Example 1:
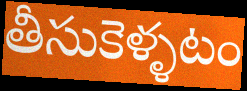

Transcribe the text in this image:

తీసుకెళ్ళటం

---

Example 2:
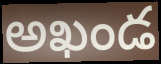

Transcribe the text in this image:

అఖండ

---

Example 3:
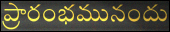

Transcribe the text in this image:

ప్రారంభమునందు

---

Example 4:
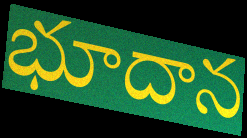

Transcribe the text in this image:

భూదాన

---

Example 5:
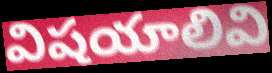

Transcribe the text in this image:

విషయాలివి